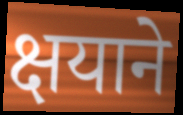
क्षयाने